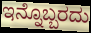
ಇನ್ನೊಬ್ಬರದು